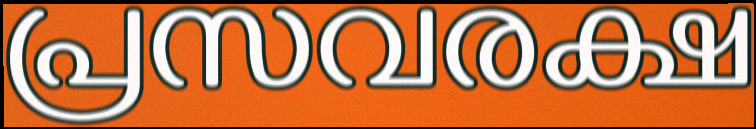
പ്രസവരക്ഷ